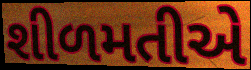
શીળમતીએ